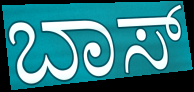
ಬಾಸ್